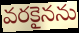
వరకైనను